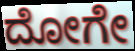
ದೋಗೇ